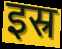
इस्र